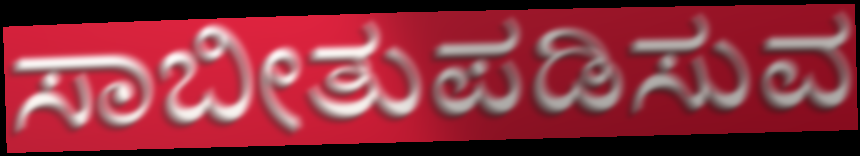
ಸಾಬೀತುಪಡಿಸುವ